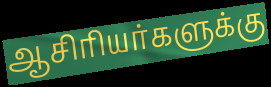
ஆசிரியர்களுக்கு